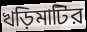
খড়িমাটির